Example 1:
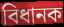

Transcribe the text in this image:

বিধানক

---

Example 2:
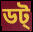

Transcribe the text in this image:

ডট্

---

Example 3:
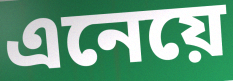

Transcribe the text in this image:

এনেয়ে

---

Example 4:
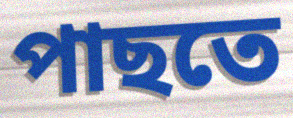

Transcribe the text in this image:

পাছতে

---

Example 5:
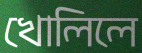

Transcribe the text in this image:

খোলিলে